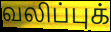
வலிப்புக்